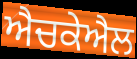
ਐਚਕੇਐਲ